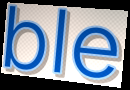
ble